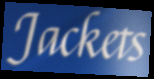
Jackets